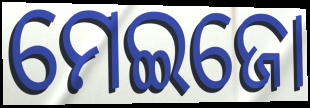
ମେଇଜୋ